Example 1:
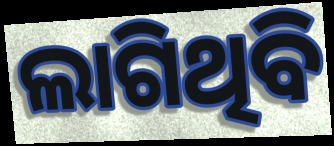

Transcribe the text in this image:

ଲାଗିଥିବି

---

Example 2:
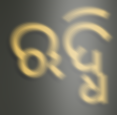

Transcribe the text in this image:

ଋଦ୍ଧି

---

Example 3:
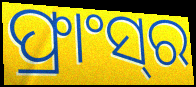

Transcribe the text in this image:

ଫ୍ରାଂସ୍‍ର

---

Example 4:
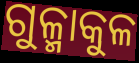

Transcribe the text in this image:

ଗୁଳ୍ମାକୁଳ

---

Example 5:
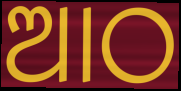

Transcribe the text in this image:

ଆଠ